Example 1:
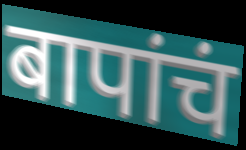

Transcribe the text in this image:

बापांचं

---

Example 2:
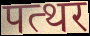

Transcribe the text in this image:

पत्थर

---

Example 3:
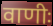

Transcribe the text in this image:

वाणीः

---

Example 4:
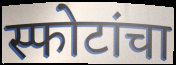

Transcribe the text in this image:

स्फोटांचा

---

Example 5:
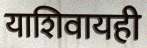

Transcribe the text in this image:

याशिवायही